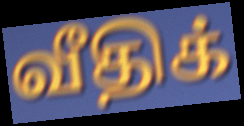
வீதிக்